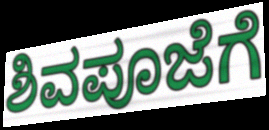
ಶಿವಪೂಜೆಗೆ